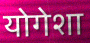
योगेशा